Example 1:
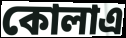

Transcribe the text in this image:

কোলাএ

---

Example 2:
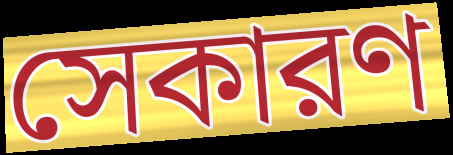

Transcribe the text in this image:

সেকারণ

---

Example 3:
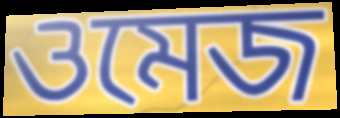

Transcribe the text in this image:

ওমেজ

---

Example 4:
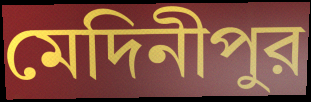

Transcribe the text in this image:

মেদিনীপুর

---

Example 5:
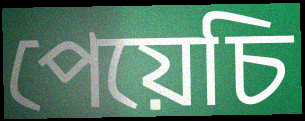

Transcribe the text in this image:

পেয়েচি